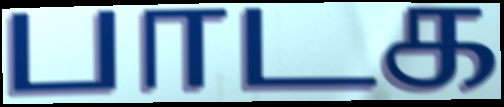
பாடக